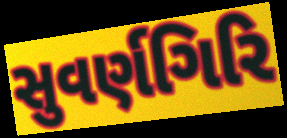
સુવર્ણગિરિ